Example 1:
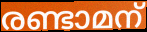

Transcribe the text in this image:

രണ്ടാമന്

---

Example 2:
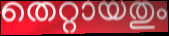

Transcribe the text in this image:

തെറ്റായതും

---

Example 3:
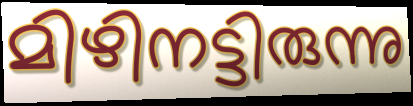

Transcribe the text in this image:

മിഴിനട്ടിരുന്നു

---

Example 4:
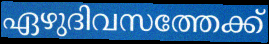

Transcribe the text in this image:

ഏഴുദിവസത്തേക്ക്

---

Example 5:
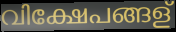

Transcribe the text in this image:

വിക്ഷേപങ്ങള്